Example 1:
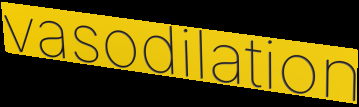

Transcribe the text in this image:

vasodilation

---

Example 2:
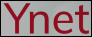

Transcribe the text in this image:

Ynet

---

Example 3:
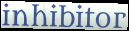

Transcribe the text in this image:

inhibitor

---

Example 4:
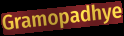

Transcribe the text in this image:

Gramopadhye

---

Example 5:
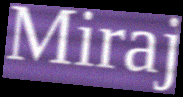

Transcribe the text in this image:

Miraj